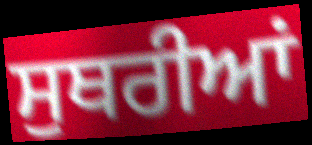
ਸੁਥਰੀਆਂ